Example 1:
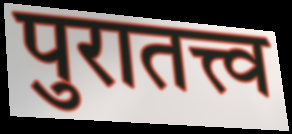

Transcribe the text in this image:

पुरातत्त्व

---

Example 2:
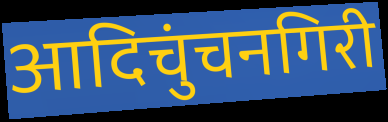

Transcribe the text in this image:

आदिचुंचनगिरी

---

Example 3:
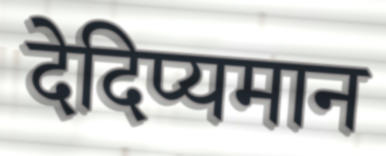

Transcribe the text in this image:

देदिप्यमान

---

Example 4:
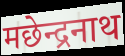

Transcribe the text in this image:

मछेन्द्रनाथ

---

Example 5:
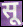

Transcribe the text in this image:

सू